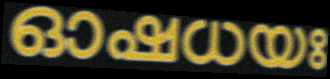
ഓഷധയഃ